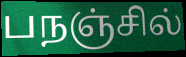
பநஞ்சில்